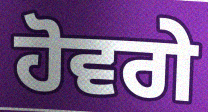
ਹੋਵਗੇ